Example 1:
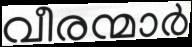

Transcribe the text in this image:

വീരന്മാർ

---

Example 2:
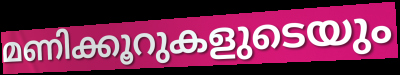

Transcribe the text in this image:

മണിക്കൂറുകളുടെയും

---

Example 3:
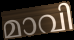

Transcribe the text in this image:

മാവി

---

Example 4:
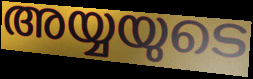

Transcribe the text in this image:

അയ്യയുടെ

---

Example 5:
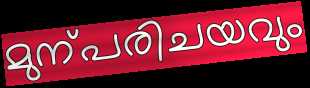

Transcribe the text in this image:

മുന്പരിചയവും